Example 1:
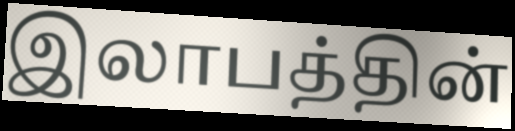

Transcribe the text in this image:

இலாபத்தின்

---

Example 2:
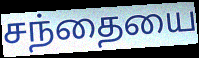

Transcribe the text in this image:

சந்தையை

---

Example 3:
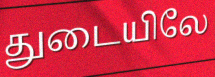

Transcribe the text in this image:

துடையிலே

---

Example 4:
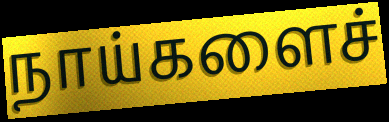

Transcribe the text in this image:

நாய்களைச்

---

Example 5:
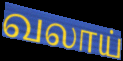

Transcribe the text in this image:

வலாய்